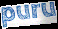
puru